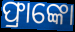
ଫ୍ରାଙ୍କୋ